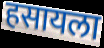
हसायला